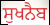
ਸੁਖਨੈਬ